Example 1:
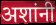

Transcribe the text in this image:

अशांनी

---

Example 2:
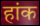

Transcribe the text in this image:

हांक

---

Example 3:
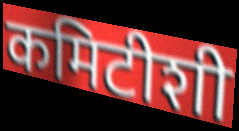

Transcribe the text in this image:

कमिटीशी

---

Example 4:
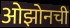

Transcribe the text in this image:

ओझोनची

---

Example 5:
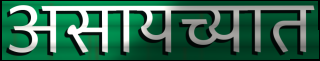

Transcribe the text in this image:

असायच्यात